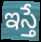
ఇస్తే